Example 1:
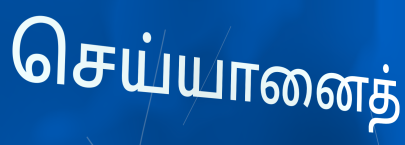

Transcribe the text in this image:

செய்யானைத்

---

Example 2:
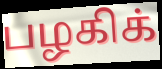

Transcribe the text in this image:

பழகிக்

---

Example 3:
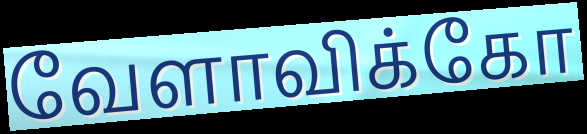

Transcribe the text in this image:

வேளாவிக்கோ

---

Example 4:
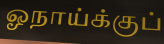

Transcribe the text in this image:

ஓநாய்க்குப்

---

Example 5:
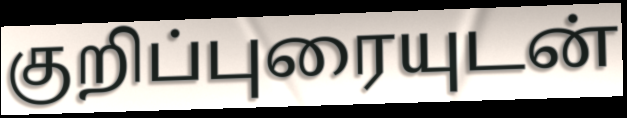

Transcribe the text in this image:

குறிப்புரையுடன்